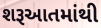
શરૂઆતમાંથી